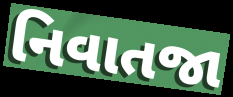
નિવાતજા